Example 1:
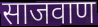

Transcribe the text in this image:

साजवाण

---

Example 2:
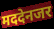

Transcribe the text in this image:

मददेनजर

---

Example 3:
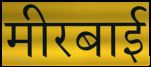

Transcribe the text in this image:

मीरबाई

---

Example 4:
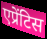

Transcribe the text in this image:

एप्रेंटिस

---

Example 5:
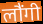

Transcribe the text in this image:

लौंगी